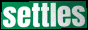
settles